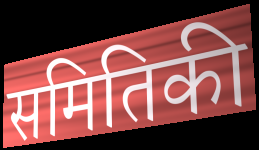
समितिकी